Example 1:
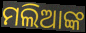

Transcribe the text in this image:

ମଲିଆଙ୍କ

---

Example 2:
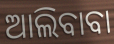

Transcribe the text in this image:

ଆଲିବାବା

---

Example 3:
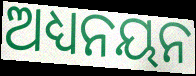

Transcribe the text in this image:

ଅଧ୍ୟନୟନ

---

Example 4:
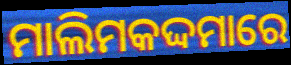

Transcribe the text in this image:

ମାଲିମକଦ୍ଦମାରେ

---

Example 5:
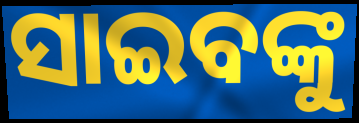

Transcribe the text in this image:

ସାଇବଙ୍କୁ